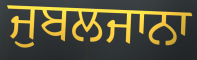
ਜੁਬਲਜਾਨਾ